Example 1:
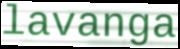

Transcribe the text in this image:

lavanga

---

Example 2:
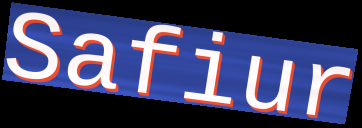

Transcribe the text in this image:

Safiur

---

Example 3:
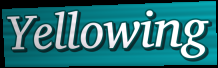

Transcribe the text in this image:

Yellowing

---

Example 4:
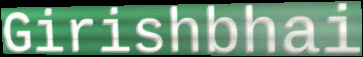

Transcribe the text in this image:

Girishbhai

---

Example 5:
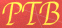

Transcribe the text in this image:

PTB